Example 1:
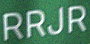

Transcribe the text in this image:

RRJR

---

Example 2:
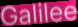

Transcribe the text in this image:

Galilee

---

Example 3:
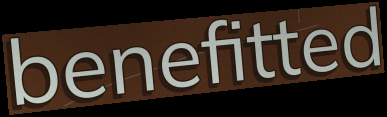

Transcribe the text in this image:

benefitted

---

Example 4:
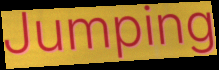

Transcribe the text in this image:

Jumping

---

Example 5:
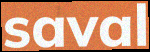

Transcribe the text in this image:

saval